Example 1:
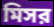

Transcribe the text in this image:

মিসর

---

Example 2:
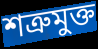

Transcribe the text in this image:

শত্রুমুক্ত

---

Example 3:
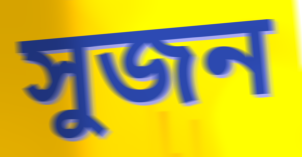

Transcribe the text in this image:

সুজন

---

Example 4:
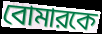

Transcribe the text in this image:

বোমারকে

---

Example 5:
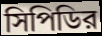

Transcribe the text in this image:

সিপিডির